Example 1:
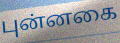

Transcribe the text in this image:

புன்னகை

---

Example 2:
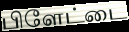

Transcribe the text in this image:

பிளேட்டை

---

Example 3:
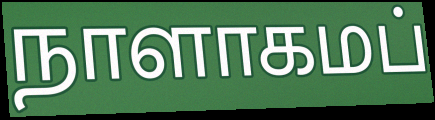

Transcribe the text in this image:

நாளாகமப்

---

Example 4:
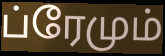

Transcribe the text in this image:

ப்ரேமும்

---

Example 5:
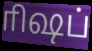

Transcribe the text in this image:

ரிஷப்